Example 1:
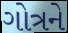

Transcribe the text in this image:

ગોત્રને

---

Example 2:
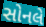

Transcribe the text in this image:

સોનલે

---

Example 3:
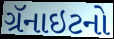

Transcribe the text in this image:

ગ્રૅનાઇટનો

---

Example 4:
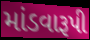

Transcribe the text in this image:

માંડવારૂપી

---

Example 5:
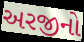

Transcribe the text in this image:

અરજીનો